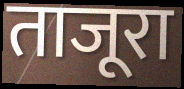
ताजूरा